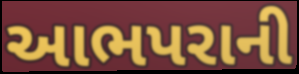
આભપરાની